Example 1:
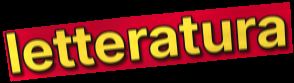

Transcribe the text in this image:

letteratura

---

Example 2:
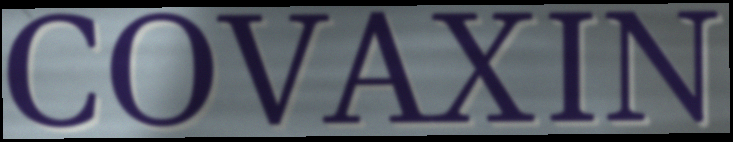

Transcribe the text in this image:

COVAXIN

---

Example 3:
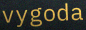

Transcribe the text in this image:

vygoda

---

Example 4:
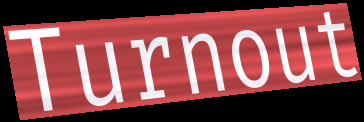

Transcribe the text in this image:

Turnout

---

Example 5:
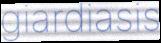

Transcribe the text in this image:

giardiasis